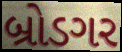
બ્રોડગર